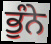
ਭੁੰਨੇ